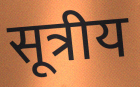
सूत्रीय